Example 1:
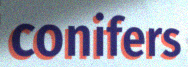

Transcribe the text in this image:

conifers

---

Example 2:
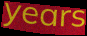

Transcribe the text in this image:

years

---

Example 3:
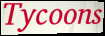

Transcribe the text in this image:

Tycoons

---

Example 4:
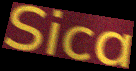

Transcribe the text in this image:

Sica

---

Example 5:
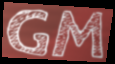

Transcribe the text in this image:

GM